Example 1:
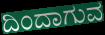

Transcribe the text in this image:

ದಿಂದಾಗುವ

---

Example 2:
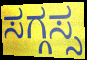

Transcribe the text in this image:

ಸಗ್ಗಸ್ಸ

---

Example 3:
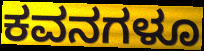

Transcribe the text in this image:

ಕವನಗಳೂ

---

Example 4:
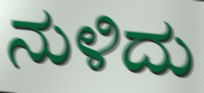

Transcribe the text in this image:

ನುಳಿದು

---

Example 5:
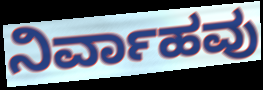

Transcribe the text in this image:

ನಿರ್ವಾಹವು